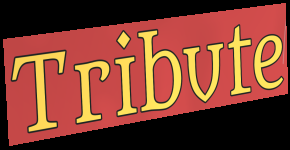
Tribute